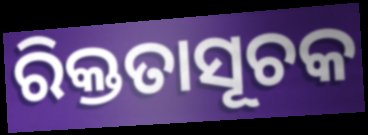
ରିକ୍ତତାସୂଚକ